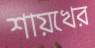
শায়খের